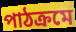
পাঠক্রমে